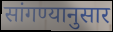
सांगण्यानुसार